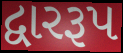
દ્વારરૂપ